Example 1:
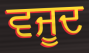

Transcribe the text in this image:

ਵਜੂਦ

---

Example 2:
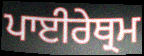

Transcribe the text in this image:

ਪਾਈਰੇਥ੍ਰਮ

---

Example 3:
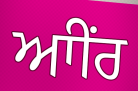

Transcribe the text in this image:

ਆੀਂਰ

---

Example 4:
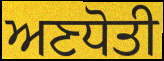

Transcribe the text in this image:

ਅਣਧੋਤੀ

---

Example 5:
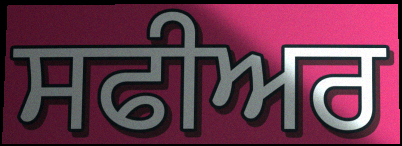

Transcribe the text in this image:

ਸਫੀਅਰ